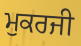
ਮੁਕਰਜੀ